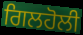
ਗਿਲਹੋਲੀ